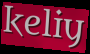
keliy